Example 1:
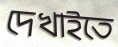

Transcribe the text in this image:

দেখাইতে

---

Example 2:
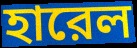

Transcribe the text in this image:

হারেল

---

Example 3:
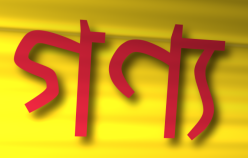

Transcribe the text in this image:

গণ্য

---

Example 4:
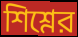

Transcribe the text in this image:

শিশ্নের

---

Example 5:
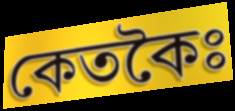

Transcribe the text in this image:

কেতকৈঃ